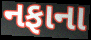
નફાના